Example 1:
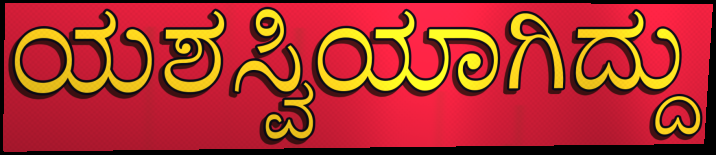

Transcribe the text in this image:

ಯಶಸ್ವಿಯಾಗಿದ್ದು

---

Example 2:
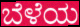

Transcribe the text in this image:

ಬೆಳೆಯ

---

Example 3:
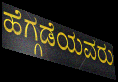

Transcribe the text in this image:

ಹೆಗ್ಗಡೆಯವರು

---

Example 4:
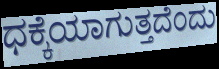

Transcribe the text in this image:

ಧಕ್ಕೆಯಾಗುತ್ತದೆಂದು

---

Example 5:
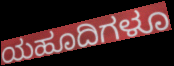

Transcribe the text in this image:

ಯಹೂದಿಗಳೂ